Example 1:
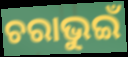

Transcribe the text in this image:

ଚରାଭୁଇଁ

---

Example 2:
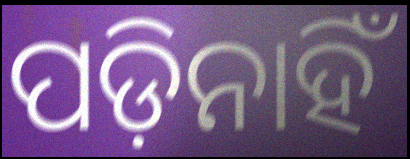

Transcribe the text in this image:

ପଡ଼ିନାହିଁ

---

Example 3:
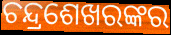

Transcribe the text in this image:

ଚନ୍ଦ୍ରଶେଖରଙ୍କର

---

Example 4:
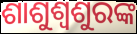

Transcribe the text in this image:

ଶାଶୁଶ୍ୱଶୁରଙ୍କ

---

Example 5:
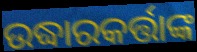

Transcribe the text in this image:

ଉଦ୍ଧାରକର୍ତ୍ତାଙ୍କ